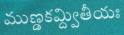
ముణ్డకమ్ద్వితీయః